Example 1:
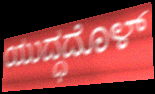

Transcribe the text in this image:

ಯುದ್ಧದೊಳ್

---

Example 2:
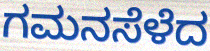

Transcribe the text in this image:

ಗಮನಸೆಳೆದ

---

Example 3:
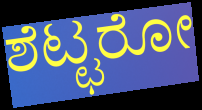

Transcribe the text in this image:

ಶೆಟ್ಟರೋ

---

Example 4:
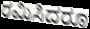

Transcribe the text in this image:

ರಮಿಸಿದರೂ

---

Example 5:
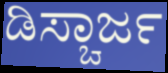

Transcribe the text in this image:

ಡಿಸ್ಚಾರ್ಜ